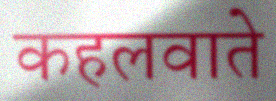
कहलवाते